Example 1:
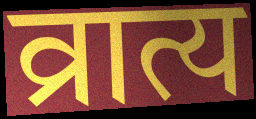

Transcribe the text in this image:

व्रात्य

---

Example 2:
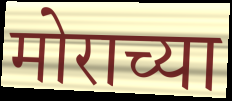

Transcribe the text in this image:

मोराच्या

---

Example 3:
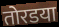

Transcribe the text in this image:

तोरडया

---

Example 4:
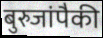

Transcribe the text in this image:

बुरुजांपैकी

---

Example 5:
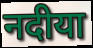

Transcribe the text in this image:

नदीया